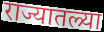
राज्यातल्या